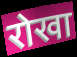
रोखा